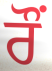
ਰੌਂ